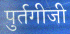
पुर्तगीजी